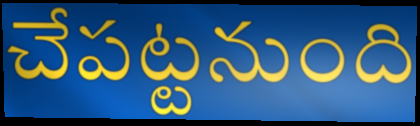
చేపట్టనుంది